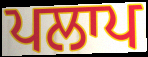
ਪਲਾਪ